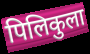
पिलिकुला